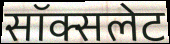
सॉक्सलेट